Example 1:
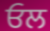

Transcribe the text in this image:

ਓਲ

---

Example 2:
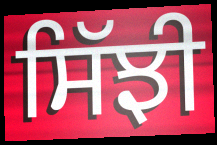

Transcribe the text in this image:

ਸਿੱਝੀ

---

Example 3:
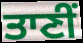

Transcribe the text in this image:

ਤਾਣੀਂ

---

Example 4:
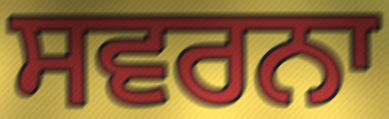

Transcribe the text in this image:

ਸਵਰਨਾ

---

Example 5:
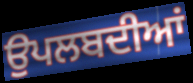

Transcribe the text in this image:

ਉਪਲਬਦੀਆਂ